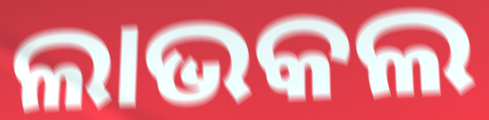
ଲାଭକଲ